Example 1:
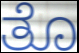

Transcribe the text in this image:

ತೊ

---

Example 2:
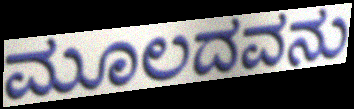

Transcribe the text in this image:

ಮೂಲದವನು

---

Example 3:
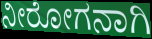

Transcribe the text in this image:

ನೀರೋಗನಾಗಿ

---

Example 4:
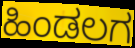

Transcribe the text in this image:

ಹಿಂಡಲಗ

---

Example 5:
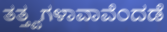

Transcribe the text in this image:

ತತ್ತ್ವಗಳಾವಾವೆಂದಡೆ